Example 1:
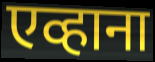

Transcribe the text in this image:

एव्हाना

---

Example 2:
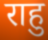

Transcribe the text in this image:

राहु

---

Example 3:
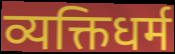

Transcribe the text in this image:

व्यक्तिधर्म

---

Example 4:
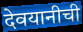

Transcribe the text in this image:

देवयानीची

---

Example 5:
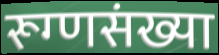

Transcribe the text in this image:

रूग्णसंख्या